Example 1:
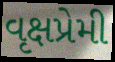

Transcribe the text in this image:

વૃક્ષપ્રેમી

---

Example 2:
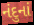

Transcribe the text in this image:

નંદુનાં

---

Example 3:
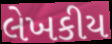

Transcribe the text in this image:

લેખકીય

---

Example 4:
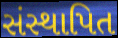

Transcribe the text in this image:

સંસ્થાપિત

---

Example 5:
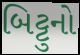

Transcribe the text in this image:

બિટ્ટુનો